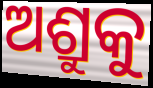
ଅଶ୍ରୁକୁ